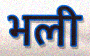
भली